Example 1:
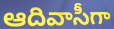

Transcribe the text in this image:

ఆదివాసీగా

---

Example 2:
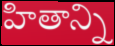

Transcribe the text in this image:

హితాన్ని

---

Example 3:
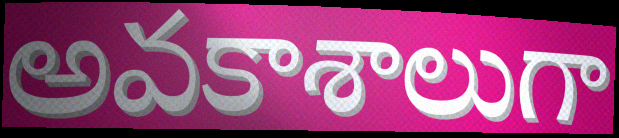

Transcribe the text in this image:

అవకాశాలుగా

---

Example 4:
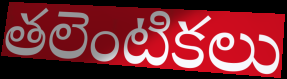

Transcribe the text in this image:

తలెంటికలు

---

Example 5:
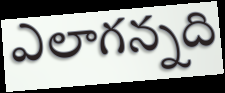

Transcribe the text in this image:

ఎలాగన్నది